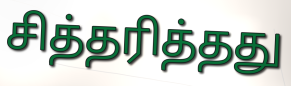
சித்தரித்தது